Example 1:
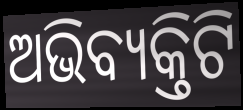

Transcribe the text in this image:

ଅଭିବ୍ୟକ୍ତିଟି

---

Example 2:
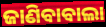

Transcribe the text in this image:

ଜାଣିବାବାଲା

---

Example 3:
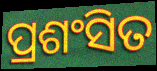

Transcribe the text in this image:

ପ୍ରଶଂସିତ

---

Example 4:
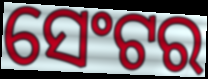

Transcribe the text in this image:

ସେଂଟର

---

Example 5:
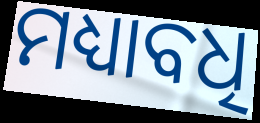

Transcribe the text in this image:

ମଧ୍ୟାବଧି